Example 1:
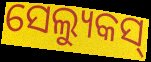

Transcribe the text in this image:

ସେଲ୍ୟୁକସ୍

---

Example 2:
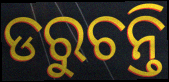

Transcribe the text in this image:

ଡରୁଚନ୍ତି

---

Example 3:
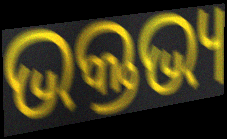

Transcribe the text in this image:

ଭକ୍ତଭ୍ୟ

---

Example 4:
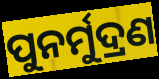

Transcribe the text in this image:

ପୁନର୍ମୁଦ୍ରଣ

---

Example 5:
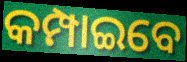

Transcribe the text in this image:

କମ୍ପାଇବେ